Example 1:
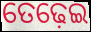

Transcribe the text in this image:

ତେଢ଼େଇ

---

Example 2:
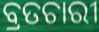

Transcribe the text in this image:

ବ୍ରତଚାରୀ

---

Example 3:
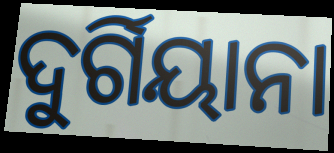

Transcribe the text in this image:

ଦୁର୍ଗିୟାନା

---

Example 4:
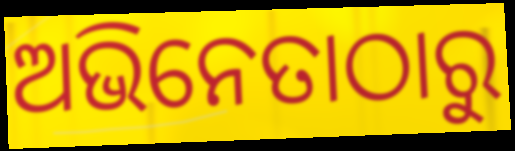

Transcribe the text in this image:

ଅଭିନେତାଠାରୁ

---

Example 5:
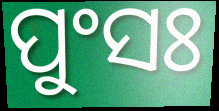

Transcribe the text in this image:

ପୁଂସଃ